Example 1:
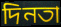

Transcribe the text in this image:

দিনতা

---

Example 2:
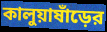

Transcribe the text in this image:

কালুয়াষাঁড়ের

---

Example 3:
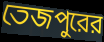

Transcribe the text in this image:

তেজপুরের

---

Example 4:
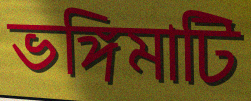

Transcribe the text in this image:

ভঙ্গিমাটি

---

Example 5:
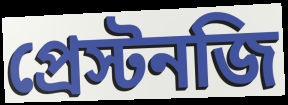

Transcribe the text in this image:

প্রেস্টনজি